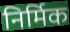
निर्मिक